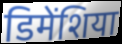
डिमेंशिया